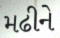
મઢીને